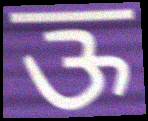
ক্ত